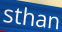
sthan